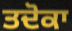
ਤਦੋਕਾ